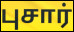
புசார்